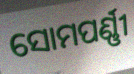
ସୋମପର୍ଣ୍ଣୀ